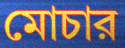
মোচার